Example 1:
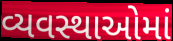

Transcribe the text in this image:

વ્યવસ્થાઓમાં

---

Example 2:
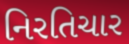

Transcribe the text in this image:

નિરતિચાર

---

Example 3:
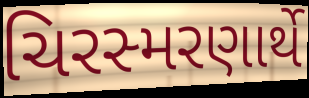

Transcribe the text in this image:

ચિરસ્મરણાર્થે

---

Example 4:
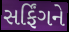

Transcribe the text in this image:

સર્ફિંગને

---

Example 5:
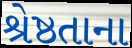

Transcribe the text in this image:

શ્રેષ્ઠતાના